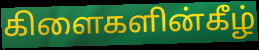
கிளைகளின்கீழ்